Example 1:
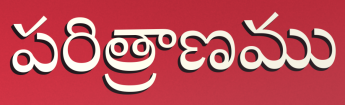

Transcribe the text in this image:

పరిత్రాణము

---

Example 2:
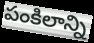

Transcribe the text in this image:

పంకిలాన్ని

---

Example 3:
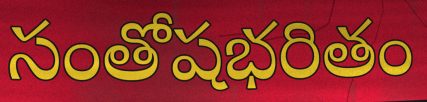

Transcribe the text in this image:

సంతోషభరితం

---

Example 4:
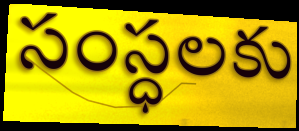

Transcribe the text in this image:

సంస్ధలకు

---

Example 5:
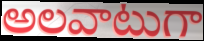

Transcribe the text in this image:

అలవాటుగా